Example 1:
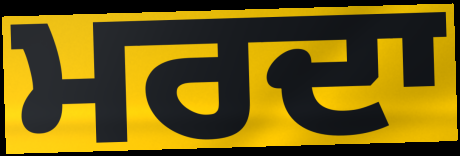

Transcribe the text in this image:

ਮਰਦਾ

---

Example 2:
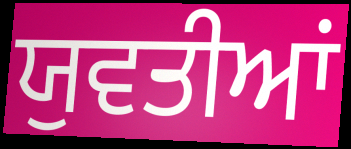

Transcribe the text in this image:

ਯੁਵਤੀਆਂ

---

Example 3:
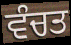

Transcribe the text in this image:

ਵੰਚਤ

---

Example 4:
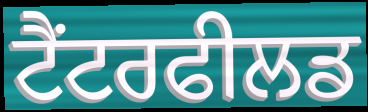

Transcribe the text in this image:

ਟੈਂਟਰਫੀਲਡ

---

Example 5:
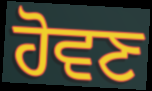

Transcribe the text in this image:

ਹੋਵਣ